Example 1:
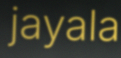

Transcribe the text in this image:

jayala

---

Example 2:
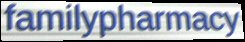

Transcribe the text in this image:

familypharmacy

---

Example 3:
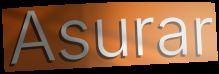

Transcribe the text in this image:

Asurar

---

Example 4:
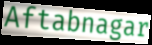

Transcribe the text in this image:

Aftabnagar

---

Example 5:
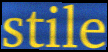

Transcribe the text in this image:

stile